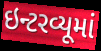
ઇન્ટરવ્યૂમાં